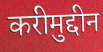
करीमुद्दीन